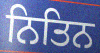
ਨਿਤਿਨ